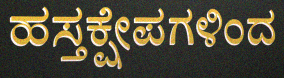
ಹಸ್ತಕ್ಷೇಪಗಳಿಂದ